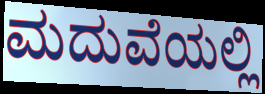
ಮದುವೆಯಲ್ಲಿ